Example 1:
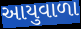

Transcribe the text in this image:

આયુવાળા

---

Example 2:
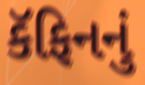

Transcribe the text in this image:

કૅફિનનું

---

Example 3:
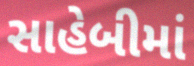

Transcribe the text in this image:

સાહેબીમાં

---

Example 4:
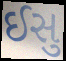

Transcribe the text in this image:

ઈસુ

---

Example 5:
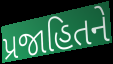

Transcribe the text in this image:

પ્રજાહિતને